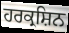
ਹਰਕ੍ਰਸ਼ਿਨ